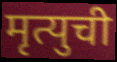
मृत्युची